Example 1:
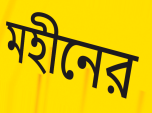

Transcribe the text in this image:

মহীনের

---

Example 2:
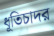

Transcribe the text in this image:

ধূতিচাদর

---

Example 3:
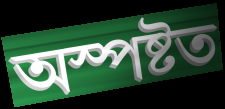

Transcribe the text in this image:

অস্পষ্টত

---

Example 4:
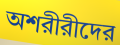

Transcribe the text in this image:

অশরীরীদের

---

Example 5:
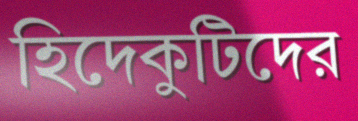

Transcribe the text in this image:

হিদেকুটিদের